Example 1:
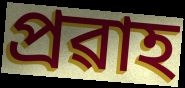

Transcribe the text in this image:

প্ৰৱাহ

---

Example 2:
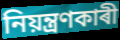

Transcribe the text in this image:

নিয়ন্ত্ৰণকাৰী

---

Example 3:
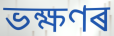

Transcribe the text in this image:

ভক্ষণৰ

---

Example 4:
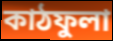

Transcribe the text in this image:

কাঠফুলা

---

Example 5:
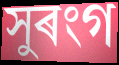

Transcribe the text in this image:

সুৰংগ